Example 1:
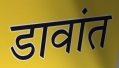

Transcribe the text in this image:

डावांत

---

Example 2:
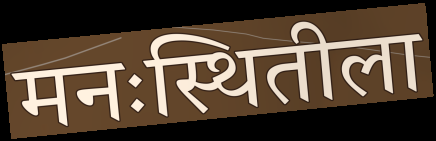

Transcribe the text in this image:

मनःस्थितीला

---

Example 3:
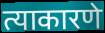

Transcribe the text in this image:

त्याकारणे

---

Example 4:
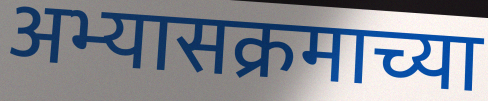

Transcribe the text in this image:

अभ्यासक्रमाच्या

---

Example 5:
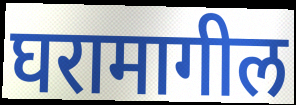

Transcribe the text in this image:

घरामागील